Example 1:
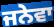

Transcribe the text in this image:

ਜਨੇਵਾ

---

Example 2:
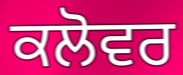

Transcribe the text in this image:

ਕਲੋਵਰ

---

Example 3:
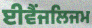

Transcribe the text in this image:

ਈਵੈਂਜਲਿਜਮ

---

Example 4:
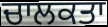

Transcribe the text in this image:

ਚਾਲਕਤਾ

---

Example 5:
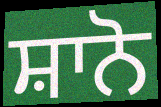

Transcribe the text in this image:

ਸ਼ਾਨੋ